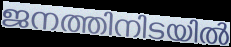
ജനത്തിനിടയിൽ